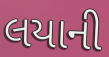
લયાની